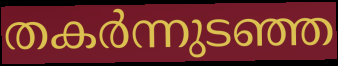
തകർന്നുടഞ്ഞ